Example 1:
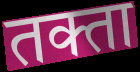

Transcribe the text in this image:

तक्ता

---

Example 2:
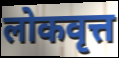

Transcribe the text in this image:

लोकवृत्त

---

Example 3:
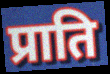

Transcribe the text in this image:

प्राति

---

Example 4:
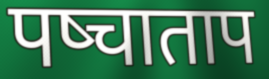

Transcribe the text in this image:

पष्चाताप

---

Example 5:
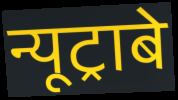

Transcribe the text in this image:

न्यूट्राबे